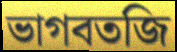
ভাগবতজি